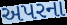
અપરના